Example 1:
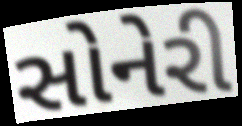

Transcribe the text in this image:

સોનેરી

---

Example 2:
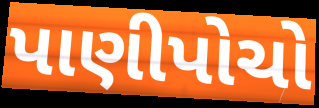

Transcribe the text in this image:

પાણીપોચો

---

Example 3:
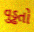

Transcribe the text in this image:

વુડ્ઢતો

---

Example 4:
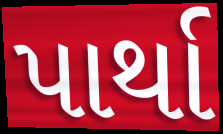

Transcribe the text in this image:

પાર્થા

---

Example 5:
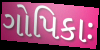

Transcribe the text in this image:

ગોપિકાઃ